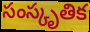
సంస్కృతిక